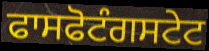
ਫਾਸਫੋਟੰਗਸਟੇਟ